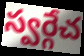
స్వర్గేచ